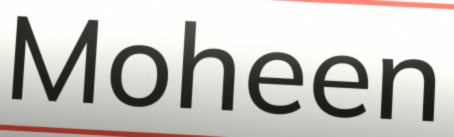
Moheen